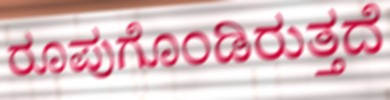
ರೂಪುಗೊಂಡಿರುತ್ತದೆ